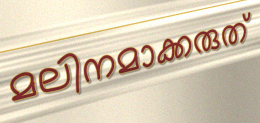
മലിനമാക്കരുത്